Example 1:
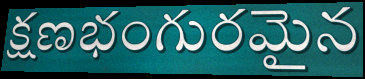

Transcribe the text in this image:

క్షణభంగురమైన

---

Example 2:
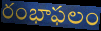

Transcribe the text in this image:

రంభాఫలం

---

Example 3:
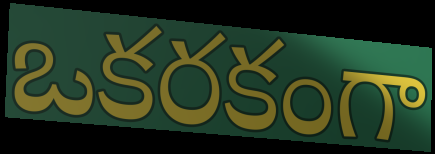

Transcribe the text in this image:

ఒకరకంగా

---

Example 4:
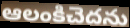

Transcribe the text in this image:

ఆలంకిచెదను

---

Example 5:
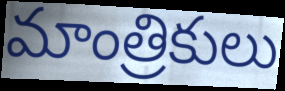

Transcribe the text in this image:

మాంత్రికులు